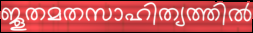
ജൂതമതസാഹിത്യത്തിൽ